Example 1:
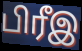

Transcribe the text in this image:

பிரீஇ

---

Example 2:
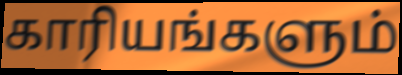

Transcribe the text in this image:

காரியங்களும்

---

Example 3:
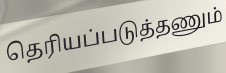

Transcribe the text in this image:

தெரியப்படுத்தணும்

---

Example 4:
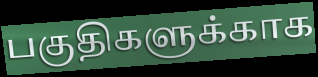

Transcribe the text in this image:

பகுதிகளுக்காக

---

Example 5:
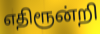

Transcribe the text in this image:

எதிரூன்றி